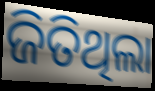
ଜିତିଥିଲା